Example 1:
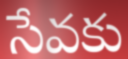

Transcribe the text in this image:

సేవకు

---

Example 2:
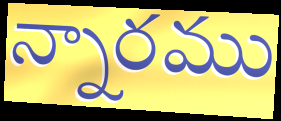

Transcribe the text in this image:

న్నారము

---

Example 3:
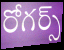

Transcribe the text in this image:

రోగర్స్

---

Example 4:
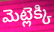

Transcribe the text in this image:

మెట్లెక్కి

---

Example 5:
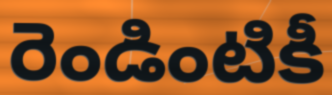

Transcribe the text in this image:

రెండింటికీ